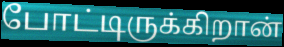
போட்டிருக்கிறான்